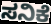
ಸನಿಕೆ